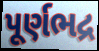
પૂર્ણભદ્ર